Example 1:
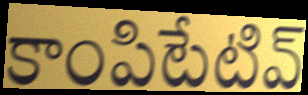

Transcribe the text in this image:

కాంపిటేటివ్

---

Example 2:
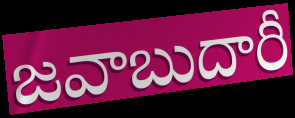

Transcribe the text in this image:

జవాబుదారీ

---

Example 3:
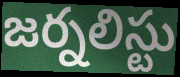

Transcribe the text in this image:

జర్నలిస్టు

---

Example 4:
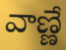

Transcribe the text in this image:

వాణ్ణే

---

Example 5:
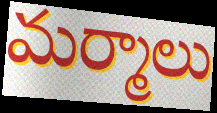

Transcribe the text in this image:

మర్మాలు